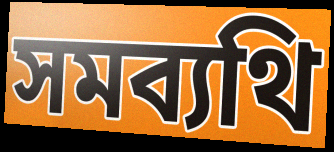
সমব্যথি